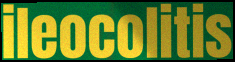
ileocolitis